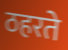
ठहरते